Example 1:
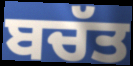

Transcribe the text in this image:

ਬਚੱਤ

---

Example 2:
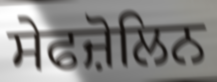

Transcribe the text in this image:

ਸੇਫਜ਼ੋਲਿਨ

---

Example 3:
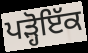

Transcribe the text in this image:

ਪੜ੍ਹੋਇੱਕ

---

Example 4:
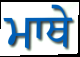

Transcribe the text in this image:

ਮਾਥੇ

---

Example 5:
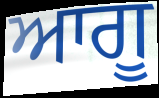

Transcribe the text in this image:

ਆਗੂ